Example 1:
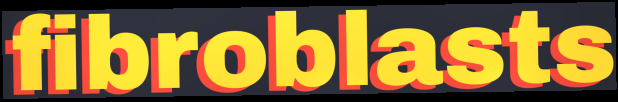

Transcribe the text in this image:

fibroblasts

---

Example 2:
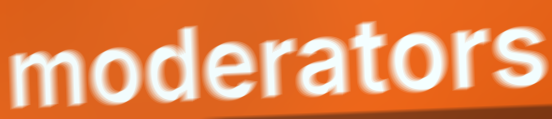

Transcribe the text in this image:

moderators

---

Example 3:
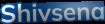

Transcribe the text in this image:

Shivsena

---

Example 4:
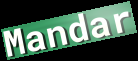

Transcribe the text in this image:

Mandar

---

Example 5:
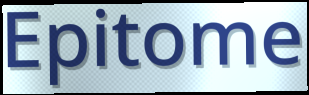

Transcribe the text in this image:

Epitome